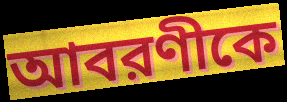
আবরণীকে